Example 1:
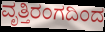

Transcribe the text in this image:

ವೃತ್ತಿರಂಗದಿಂದ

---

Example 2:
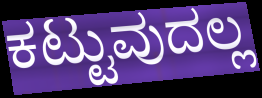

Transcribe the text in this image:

ಕಟ್ಟುವುದಲ್ಲ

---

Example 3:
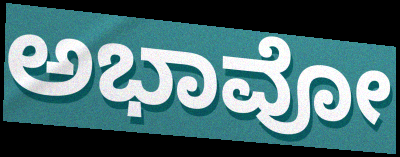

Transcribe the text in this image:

ಅಭಾವೋ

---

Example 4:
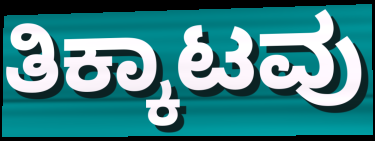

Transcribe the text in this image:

ತಿಕ್ಕಾಟವು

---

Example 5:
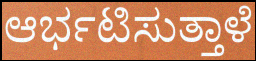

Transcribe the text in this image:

ಆರ್ಭಟಿಸುತ್ತಾಳೆ